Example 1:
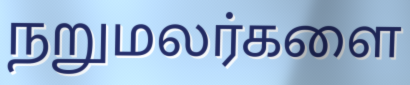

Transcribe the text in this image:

நறுமலர்களை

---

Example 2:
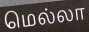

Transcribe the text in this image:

மெல்லா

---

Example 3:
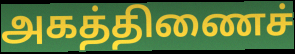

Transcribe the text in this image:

அகத்திணைச்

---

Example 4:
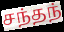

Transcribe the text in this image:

சந்தந்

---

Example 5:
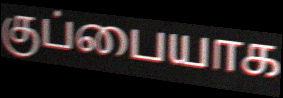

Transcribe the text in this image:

குப்பையாக